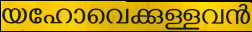
യഹോവെക്കുള്ളവൻ